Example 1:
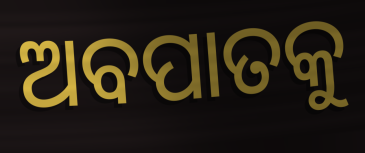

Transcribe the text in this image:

ଅବପାତକୁ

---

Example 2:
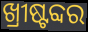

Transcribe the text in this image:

ଖ୍ରୀଷ୍ଟବ୍ଦର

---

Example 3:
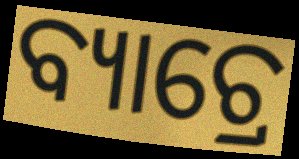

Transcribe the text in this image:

ବ୍ୟାଚ୍ରେ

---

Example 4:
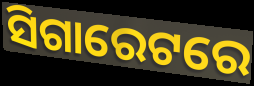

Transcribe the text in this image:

ସିଗାରେଟରେ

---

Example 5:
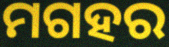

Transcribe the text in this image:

ମଗହର